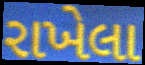
રાખેલા